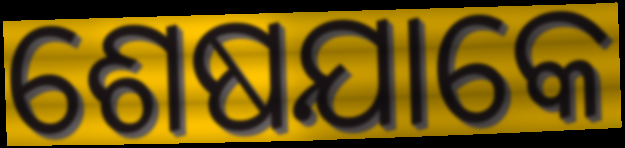
ଶେଷଯାକେ